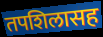
तपशिलासह